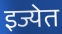
इज्येत